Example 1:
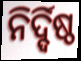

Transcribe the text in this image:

ନିର୍ଦ୍ଦିଷ୍ଠ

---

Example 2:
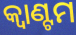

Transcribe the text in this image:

କ୍ୱାଣ୍ଟମ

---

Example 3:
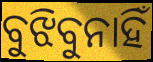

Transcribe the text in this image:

ବୁଝିବୁନାହିଁ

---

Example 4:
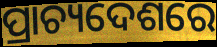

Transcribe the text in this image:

ପ୍ରାଚ୍ୟଦେଶରେ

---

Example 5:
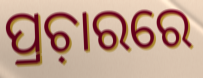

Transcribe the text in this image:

ପ୍ରଚ଼ାରରେ